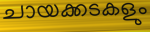
ചായക്കടകളും